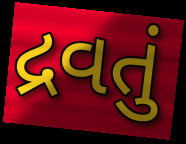
દ્રવતું